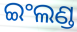
ଇଂଲଣ୍ଡ